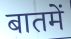
बातमें